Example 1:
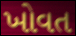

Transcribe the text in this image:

ખોવત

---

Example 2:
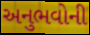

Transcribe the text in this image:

અનુભવોની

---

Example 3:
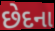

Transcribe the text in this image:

છેદના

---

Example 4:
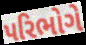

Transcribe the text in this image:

પરિભોગે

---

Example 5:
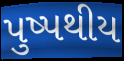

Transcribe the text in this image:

પુષ્પથીય